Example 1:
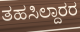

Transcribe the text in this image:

ತಹಸಿಲ್ದಾರರ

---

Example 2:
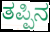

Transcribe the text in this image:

ತಪ್ಪಿನ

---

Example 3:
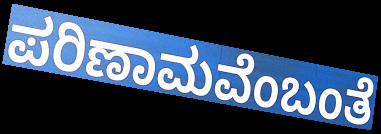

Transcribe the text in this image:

ಪರಿಣಾಮವೆಂಬಂತೆ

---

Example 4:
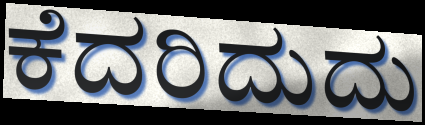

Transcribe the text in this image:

ಕೆದರಿದುದು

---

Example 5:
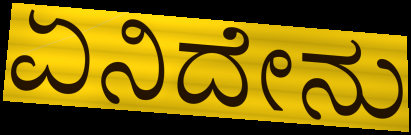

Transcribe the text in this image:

ಏನಿದೇನು